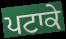
ਪਟਾਕੇ